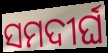
ସମଦୀର୍ଘ